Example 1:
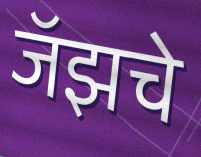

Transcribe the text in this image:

जॅझचे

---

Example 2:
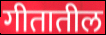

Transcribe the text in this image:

गीतातील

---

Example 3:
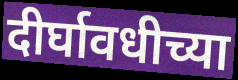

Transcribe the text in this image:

दीर्घावधीच्या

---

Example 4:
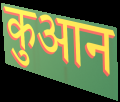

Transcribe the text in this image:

कुआन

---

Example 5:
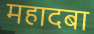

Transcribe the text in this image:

महादबा